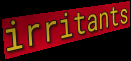
irritants